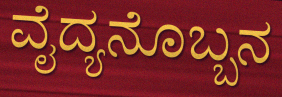
ವೈದ್ಯನೊಬ್ಬನ